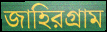
জাহিরগ্রাম